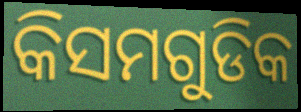
କିସମଗୁଡିକ